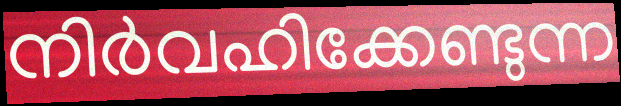
നിർവഹിക്കേണ്ടുന്ന